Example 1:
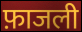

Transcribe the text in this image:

फ़ाजली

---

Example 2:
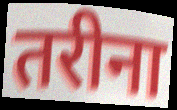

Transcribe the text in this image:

तरीना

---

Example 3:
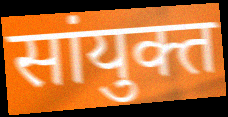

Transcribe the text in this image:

सांयुक्त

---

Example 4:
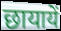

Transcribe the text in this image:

छायायें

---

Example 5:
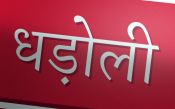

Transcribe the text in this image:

धड़ोली